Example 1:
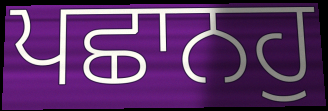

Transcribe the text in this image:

ਪਛਾਨਹੁ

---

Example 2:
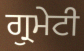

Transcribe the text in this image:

ਗ੍ਰੁਮੇਟੀ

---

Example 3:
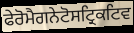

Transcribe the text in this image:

ਫੇਰੋਮੈਗਨੇਟੋਸਟ੍ਰਿਕਟਿਵ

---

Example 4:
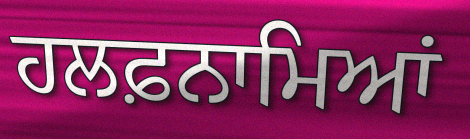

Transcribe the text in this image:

ਹਲਫ਼ਨਾਮਿਆਂ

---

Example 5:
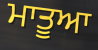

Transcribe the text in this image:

ਮਾਤੂਆ